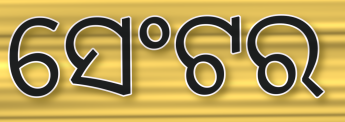
ସେଂଟର